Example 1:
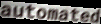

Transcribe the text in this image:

automated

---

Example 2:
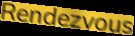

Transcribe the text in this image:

Rendezvous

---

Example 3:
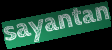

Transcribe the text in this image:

sayantan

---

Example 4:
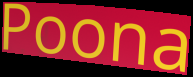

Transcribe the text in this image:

Poona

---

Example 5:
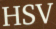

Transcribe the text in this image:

HSV